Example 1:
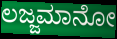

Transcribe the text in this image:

ಲಜ್ಜಮಾನೋ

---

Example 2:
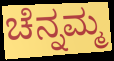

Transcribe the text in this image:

ಚೆನ್ನಮ್ಮ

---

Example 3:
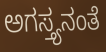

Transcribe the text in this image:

ಅಗಸ್ತ್ಯನಂತೆ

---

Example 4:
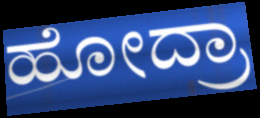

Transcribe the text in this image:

ಹೋದ್ರಾ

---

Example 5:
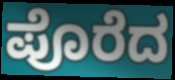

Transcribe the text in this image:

ಪೊರೆದ